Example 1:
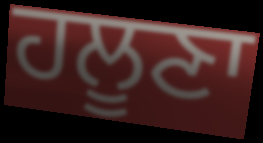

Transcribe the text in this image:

ਹਲੂਣਾ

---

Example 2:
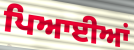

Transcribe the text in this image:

ਪਿਆਈਆਂ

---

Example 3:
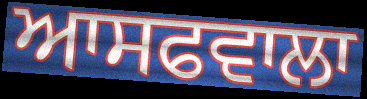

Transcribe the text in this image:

ਆਸਫਵਾਲਾ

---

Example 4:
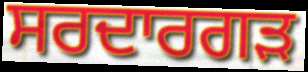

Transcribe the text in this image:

ਸਰਦਾਰਗੜ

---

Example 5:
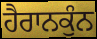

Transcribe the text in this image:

ਹੈਰਾਨਕੁੰਨ